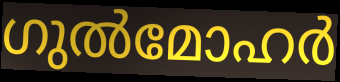
ഗുൽമോഹർ